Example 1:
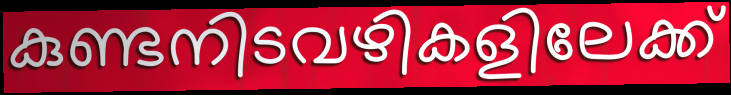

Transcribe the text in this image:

കുണ്ടനിടവഴികളിലേക്ക്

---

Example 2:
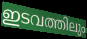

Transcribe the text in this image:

ഇടവത്തിലും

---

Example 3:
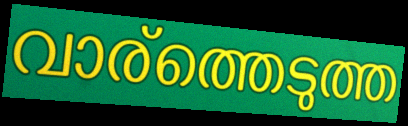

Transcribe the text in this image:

വാര്ത്തെടുത്ത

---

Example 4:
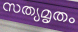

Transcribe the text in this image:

സത്യമൃതം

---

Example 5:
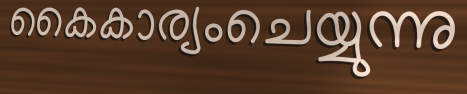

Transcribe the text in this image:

കൈകാര്യംചെയ്യുന്നു